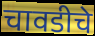
चावडीचे